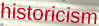
historicism